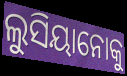
ଲୁସିୟାନୋକୁ